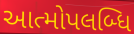
આત્મોપલબ્ધિ